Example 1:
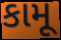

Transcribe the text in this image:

કામૂ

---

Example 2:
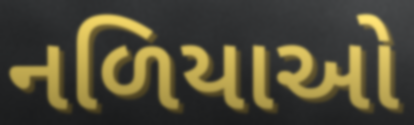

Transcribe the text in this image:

નળિયાઓ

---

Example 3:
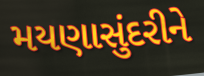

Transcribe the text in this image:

મયણાસુંદરીને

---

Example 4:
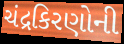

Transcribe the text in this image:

ચંદ્રકિરણોની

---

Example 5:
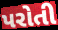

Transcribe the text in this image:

પરોતી